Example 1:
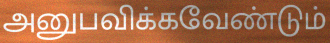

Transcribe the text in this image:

அனுபவிக்கவேண்டும்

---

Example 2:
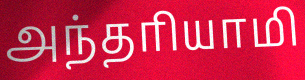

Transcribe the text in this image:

அந்தரியாமி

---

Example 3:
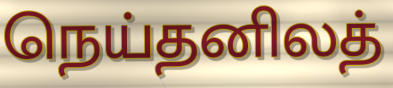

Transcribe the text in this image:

நெய்தனிலத்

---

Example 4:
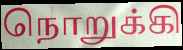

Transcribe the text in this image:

நொறுக்கி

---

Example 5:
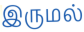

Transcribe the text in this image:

இருமல்